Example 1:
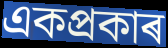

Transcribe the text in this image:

একপ্ৰকাৰ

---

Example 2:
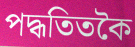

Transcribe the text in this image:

পদ্ধতিতকৈ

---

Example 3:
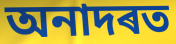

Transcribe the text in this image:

অনাদৰত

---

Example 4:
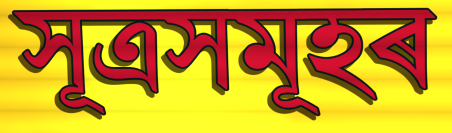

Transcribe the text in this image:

সূত্ৰসমূহৰ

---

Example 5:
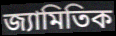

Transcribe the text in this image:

জ্যামিতিক